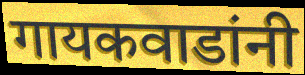
गायकवाडांनी